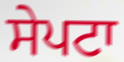
ਸੇਪਟਾ